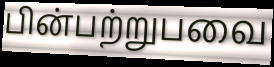
பின்பற்றுபவை